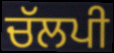
ਚੱਲਪੀ